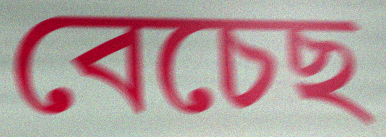
বেচেছ